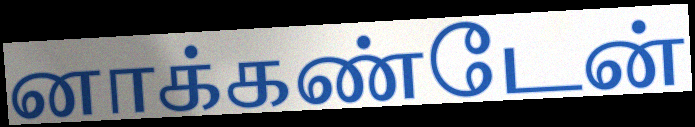
னாக்கண்டேன்